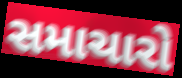
સમાચારો